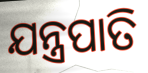
ଯନ୍ତ୍ରପାତି